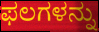
ಫಲಗಳನ್ನು